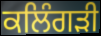
ਕਲਿੰਗੜੀ